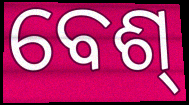
ବେଶ୍